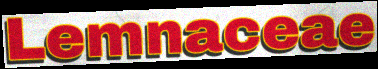
Lemnaceae